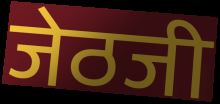
जेठजी